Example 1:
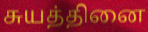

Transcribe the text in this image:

சுயத்தினை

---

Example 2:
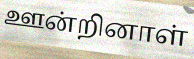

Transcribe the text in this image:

ஊன்றினாள்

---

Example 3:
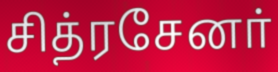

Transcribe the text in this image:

சித்ரசேனர்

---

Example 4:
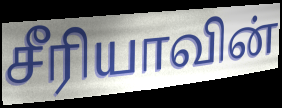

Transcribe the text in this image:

சீரியாவின்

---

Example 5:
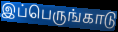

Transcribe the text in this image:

இப்பெருங்காடு